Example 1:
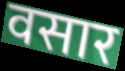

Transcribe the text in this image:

वसार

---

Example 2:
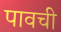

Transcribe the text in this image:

पावची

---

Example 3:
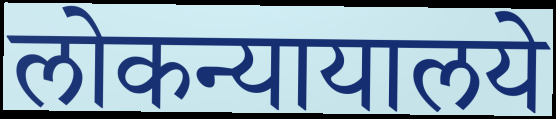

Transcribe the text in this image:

लोकन्यायालये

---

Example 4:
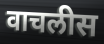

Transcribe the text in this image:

वाचलीस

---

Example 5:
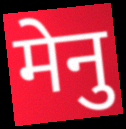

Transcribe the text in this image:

मेनु